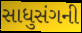
સાધુસંગની